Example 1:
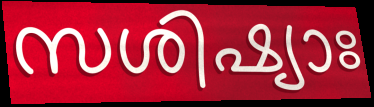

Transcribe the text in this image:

സശിഷ്യാഃ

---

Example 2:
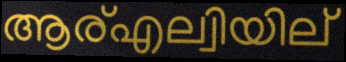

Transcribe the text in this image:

ആര്എല്വിയില്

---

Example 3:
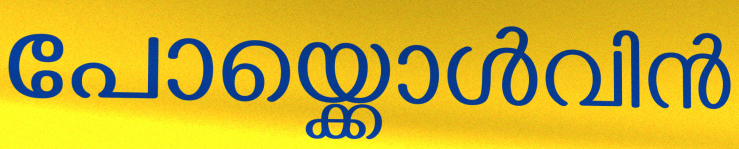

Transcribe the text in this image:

പോയ്ക്കൊൾവിൻ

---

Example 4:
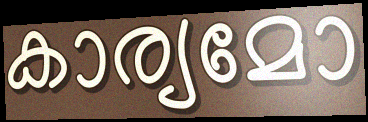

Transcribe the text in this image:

കാര്യമോ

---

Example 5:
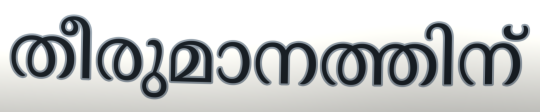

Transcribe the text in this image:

തീരുമാനത്തിന്